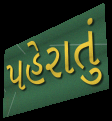
પહેરાતું